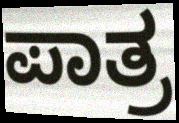
ಪಾತ್ರ